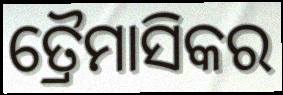
ତ୍ରୈମାସିକର